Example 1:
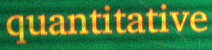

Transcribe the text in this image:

quantitative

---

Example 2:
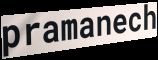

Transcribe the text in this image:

pramanech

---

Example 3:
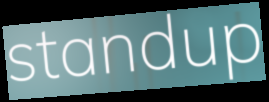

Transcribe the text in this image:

standup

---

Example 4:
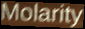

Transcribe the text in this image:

Molarity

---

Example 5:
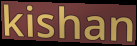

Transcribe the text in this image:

kishan